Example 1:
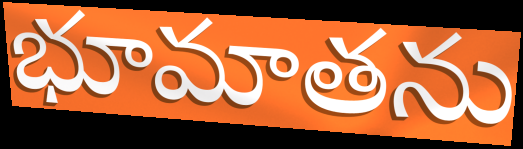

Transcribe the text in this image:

భూమాతను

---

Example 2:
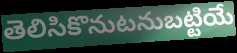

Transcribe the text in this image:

తెలిసికొనుటనుబట్టియే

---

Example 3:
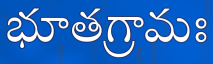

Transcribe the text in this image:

భూతగ్రామః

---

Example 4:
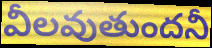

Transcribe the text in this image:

వీలవుతుందనీ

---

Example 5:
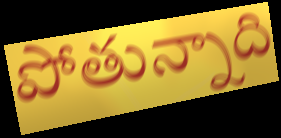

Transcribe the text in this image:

పోతున్నాది